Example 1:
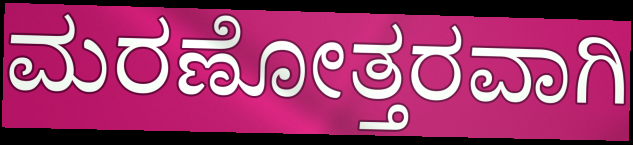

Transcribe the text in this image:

ಮರಣೋತ್ತರವಾಗಿ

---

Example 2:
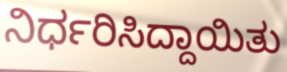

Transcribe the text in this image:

ನಿರ್ಧರಿಸಿದ್ದಾಯಿತು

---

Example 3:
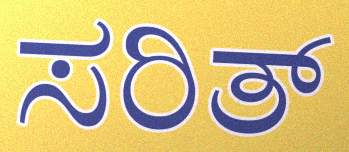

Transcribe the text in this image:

ಸರಿತ್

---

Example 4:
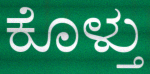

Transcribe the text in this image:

ಕೊಳ್ತು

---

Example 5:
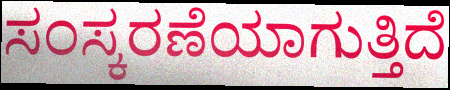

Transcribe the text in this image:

ಸಂಸ್ಕರಣೆಯಾಗುತ್ತಿದೆ